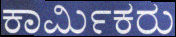
ಕಾರ್ಮಿಕರು